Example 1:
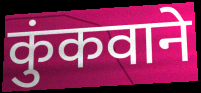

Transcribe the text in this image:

कुंकवाने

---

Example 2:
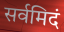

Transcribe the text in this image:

सर्वमिदं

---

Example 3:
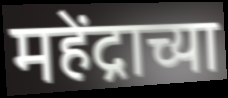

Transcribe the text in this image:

महेंद्राच्या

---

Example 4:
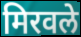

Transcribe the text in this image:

मिरवले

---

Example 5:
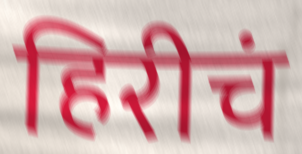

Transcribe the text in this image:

हिरीचं